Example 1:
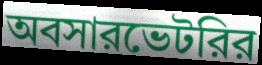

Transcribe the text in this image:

অবসারভেটরির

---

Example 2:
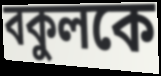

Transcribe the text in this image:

বকুলকে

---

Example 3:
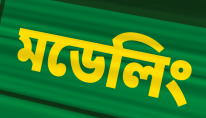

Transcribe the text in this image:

মডেলিং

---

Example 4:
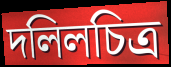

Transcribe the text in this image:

দলিলচিত্র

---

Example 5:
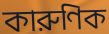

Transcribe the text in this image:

কারুণিক